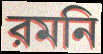
রমনি